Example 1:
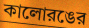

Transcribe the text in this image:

কালোরঙের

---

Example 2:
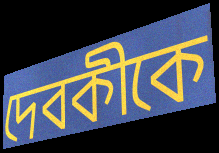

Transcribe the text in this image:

দেবকীকে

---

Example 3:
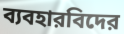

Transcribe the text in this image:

ব্যবহারবিদের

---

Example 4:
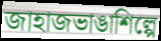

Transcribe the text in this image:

জাহাজভাঙাশিল্পে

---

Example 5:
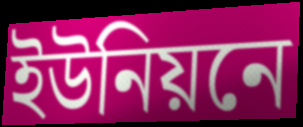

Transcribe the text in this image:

ইউনিয়নে